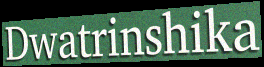
Dwatrinshika